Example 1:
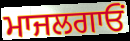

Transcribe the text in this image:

ਮਾਜਲਗਾਓਂ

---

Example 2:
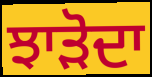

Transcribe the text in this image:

ਝਾੜੋਦਾ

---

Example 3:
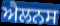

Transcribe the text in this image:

ਐਲਨਸ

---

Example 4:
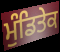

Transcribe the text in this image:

ਮੁੰਡਿਤੇਕ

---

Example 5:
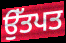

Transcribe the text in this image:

ਉੱਤਪਤ